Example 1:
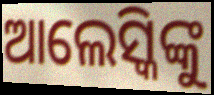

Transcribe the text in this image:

ଆଲେସ୍କିଙ୍କୁ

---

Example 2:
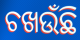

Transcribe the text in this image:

ଚଖଉଁଛି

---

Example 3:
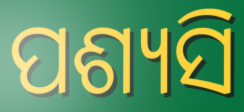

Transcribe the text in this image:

ପଶ୍ୟସି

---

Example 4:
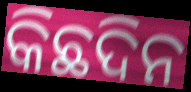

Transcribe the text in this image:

କିଛଦିନ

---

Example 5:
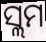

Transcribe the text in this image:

ସ୍ଲମ